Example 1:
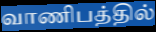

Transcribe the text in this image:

வாணிபத்தில்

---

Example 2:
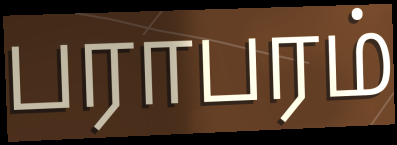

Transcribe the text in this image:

பராபரம்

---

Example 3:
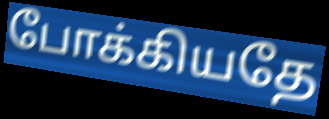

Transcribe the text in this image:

போக்கியதே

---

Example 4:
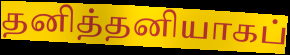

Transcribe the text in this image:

தனித்தனியாகப்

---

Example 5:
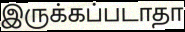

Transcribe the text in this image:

இருக்கப்படாதா